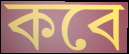
কবে